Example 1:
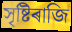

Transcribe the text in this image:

সৃষ্টিৰাজি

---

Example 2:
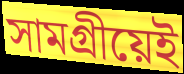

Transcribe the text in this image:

সামগ্ৰীয়েই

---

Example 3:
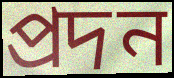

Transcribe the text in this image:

প্ৰদন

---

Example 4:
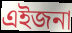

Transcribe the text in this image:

এইজনা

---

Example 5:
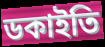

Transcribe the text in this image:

ডকাইতি